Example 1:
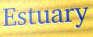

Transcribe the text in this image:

Estuary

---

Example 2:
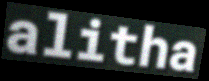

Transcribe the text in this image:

alitha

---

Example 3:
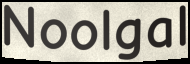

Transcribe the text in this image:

Noolgal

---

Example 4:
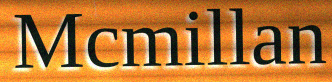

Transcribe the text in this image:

Mcmillan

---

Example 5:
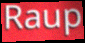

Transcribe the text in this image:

Raup